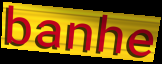
banhe